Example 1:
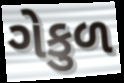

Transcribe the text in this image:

ગેકુળ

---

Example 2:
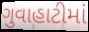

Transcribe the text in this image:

ગુવાહાટીમાં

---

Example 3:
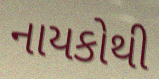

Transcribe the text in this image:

નાયકોથી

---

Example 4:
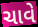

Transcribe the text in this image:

ચાવે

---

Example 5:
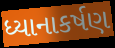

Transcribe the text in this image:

ધ્યાનાકર્ષણ